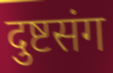
दुष्टसंग